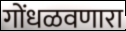
गोंधळवणारा